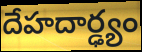
దేహదార్ఢ్యం